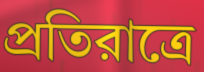
প্রতিরাত্রে